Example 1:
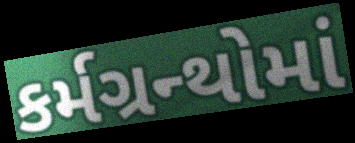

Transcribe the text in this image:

કર્મગ્રન્થોમાં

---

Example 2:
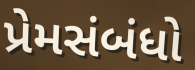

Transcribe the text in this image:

પ્રેમસંબંધો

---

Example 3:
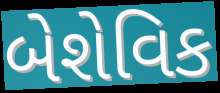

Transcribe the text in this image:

બેશેવિક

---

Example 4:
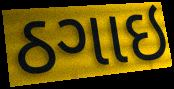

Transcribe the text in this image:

ઠગાઇ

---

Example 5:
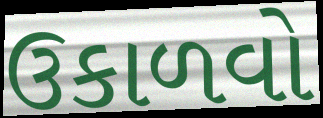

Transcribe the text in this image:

ઉકાળવો